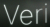
Veri